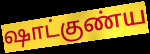
ஷாட்குண்ய